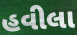
હવીલા